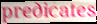
predicates